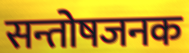
सन्तोषजनक